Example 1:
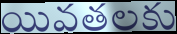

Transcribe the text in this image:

యివతలకు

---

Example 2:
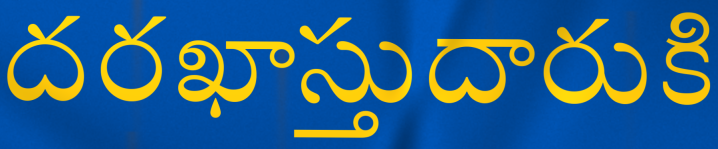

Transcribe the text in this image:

దరఖాస్తుదారుకి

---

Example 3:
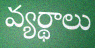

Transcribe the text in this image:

వ్యర్థాలు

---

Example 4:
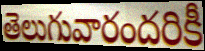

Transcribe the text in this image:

తెలుగువారందరికీ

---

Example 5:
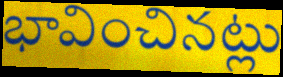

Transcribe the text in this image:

భావించినట్లు